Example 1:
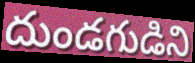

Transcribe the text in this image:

దుండగుడిని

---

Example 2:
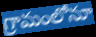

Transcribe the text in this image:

గ్రామంలోనూ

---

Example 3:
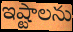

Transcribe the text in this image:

ఇష్టాలను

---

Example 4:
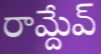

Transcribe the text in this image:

రామ్దేవ్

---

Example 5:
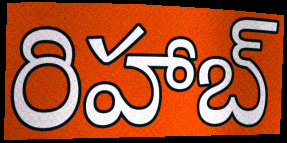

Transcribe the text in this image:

రిహాబ్